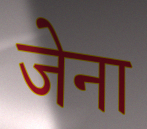
जेना